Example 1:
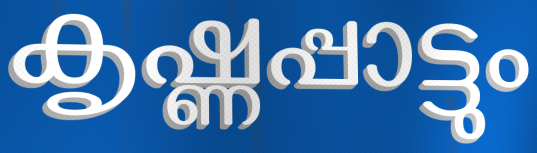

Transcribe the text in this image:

കൃഷ്ണപ്പാട്ടും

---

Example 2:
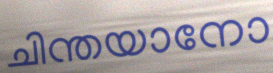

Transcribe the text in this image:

ചിന്തയാനോ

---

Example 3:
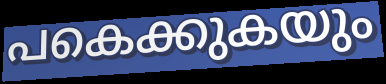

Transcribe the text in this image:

പകെക്കുകയും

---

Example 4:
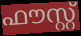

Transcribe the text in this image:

ഫൗസ്റ്റ്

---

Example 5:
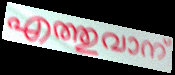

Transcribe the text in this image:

എത്തുവാന്